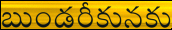
బుండరీకునకు